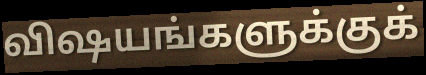
விஷயங்களுக்குக்